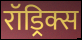
रॉड्रिक्स